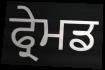
ਫ੍ਰੇਮਡ